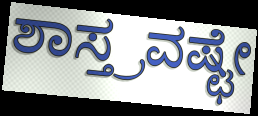
ಶಾಸ್ತ್ರವಷ್ಟೇ